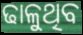
ଢାଳୁଥିବ